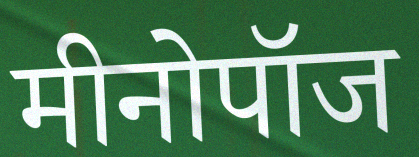
मीनोपॉज